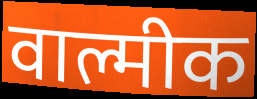
वाल्मीक